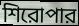
শিরোপার